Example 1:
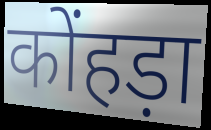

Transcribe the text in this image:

कोंहड़ा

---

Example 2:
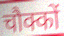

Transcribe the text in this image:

चौक्कों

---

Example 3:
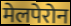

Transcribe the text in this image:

मेलपेरोन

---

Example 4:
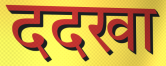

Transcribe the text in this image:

ददखा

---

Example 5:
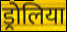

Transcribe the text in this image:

ड्रोलिया